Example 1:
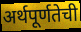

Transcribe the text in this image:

अर्थपूर्णतेची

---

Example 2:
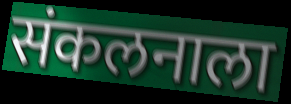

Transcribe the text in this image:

संकलनाला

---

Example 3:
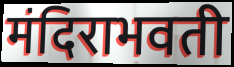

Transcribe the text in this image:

मंदिराभवती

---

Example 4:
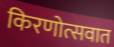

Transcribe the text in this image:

किरणोत्सवात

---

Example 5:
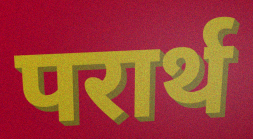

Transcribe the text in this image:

परार्थ